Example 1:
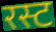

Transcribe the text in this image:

रस्ट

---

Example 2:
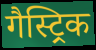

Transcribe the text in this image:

गैस्ट्रिक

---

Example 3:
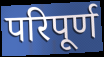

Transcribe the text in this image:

परिपूर्ण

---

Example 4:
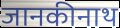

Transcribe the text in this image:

जानकीनाथ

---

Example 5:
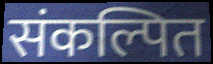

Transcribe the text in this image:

संकल्पित